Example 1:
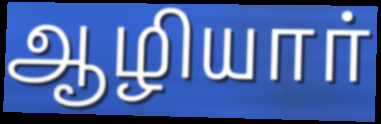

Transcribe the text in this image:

ஆழியார்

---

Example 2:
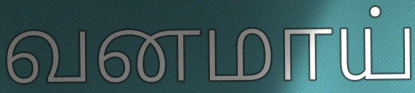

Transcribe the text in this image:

வனமாய்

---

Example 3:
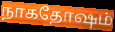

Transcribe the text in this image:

நாகதோஷம்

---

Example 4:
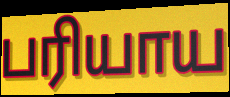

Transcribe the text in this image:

பரியாய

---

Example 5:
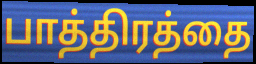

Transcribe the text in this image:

பாத்திரத்தை